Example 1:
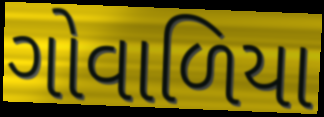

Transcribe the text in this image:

ગોવાળિયા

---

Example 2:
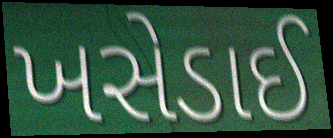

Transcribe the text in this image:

ખસેડાઈ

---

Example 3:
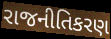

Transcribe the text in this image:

રાજનીતિકરણ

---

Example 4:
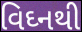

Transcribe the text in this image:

વિઘ્નથી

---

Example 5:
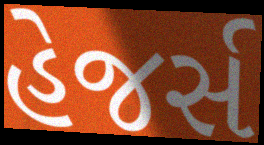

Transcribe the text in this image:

હેજર્સ